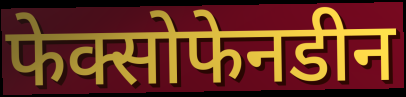
फेक्सोफेनडीन